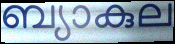
ബ്യാകുല